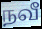
நவீ